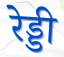
रेड्डी